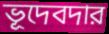
ভূদেবদার